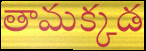
తామక్కడ